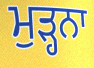
ਮੁੜ੍ਹਨਾ